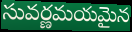
సువర్ణమయమైన